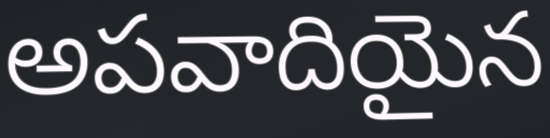
అపవాదియైన